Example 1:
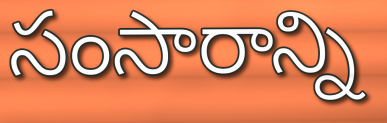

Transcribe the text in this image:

సంసారాన్ని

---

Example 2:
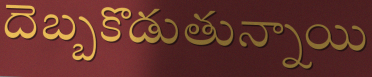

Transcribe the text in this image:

దెబ్బకొడుతున్నాయి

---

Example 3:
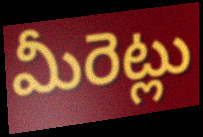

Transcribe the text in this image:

మీరెట్లు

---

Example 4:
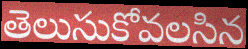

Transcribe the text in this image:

తెలుసుకోవలసిన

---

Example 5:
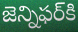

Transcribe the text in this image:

జెన్నిఫర్‌కి